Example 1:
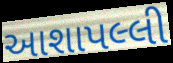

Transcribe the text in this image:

આશાપલ્લી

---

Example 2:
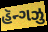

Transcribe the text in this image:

હૅન્ગઝુ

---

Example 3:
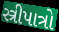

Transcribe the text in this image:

સ્ત્રીપાત્રો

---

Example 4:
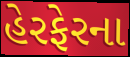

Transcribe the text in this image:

હેરફેરના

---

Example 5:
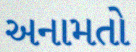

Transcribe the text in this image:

અનામતો